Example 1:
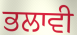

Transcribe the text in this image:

ਭਲਾਵੀ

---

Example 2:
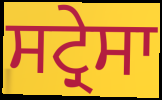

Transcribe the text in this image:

ਸਟ੍ਰੇਸਾ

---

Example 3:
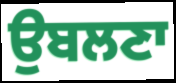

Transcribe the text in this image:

ਉਬਲਣਾ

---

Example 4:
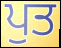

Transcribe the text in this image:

ਪੁਤ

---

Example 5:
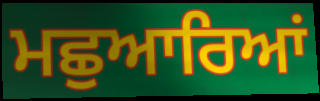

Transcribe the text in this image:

ਮਛੁਆਰਿਆਂ